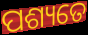
ପଶ୍ୟତେ